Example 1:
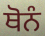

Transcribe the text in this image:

ਥੋਨੰ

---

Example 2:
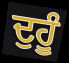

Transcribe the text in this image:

ਦੁਹੂੰ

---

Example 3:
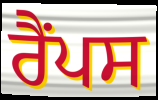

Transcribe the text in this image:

ਰੈਂਪਸ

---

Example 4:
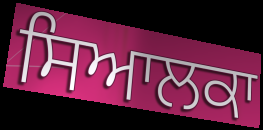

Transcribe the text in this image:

ਸਿਆਲਕਾ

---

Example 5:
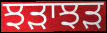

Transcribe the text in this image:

ਝੜਾਝੜ